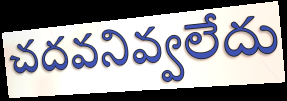
చదవనివ్వలేదు